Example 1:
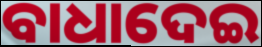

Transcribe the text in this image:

ବାଧାଦେଇ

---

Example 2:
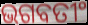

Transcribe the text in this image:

ଭଗବତୀଂ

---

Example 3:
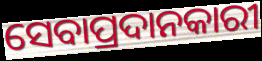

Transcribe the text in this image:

ସେବାପ୍ରଦାନକାରୀ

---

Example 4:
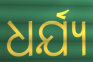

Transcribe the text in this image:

ଧର୍ଯ୍ୟ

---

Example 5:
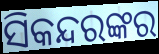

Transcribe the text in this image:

ସିକନ୍ଦରଙ୍କର